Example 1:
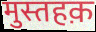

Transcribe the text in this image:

मुस्तहक़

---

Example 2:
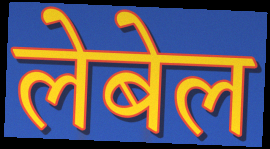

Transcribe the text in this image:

लेबेल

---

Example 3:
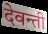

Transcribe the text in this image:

देवन्ती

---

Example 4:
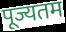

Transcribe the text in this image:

पूज्यतम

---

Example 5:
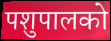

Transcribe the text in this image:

पशुपालको